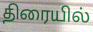
திரையில்